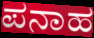
ಪನಾಹ